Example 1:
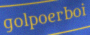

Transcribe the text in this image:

golpoerboi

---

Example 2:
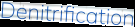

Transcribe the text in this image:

Denitrification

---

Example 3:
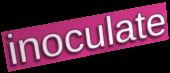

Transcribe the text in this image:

inoculate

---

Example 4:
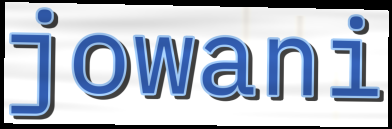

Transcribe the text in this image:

jowani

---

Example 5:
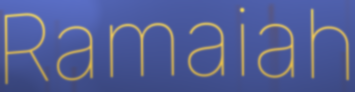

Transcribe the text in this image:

Ramaiah